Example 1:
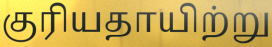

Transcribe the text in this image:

குரியதாயிற்று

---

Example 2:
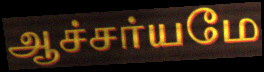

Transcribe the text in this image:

ஆச்சர்யமே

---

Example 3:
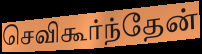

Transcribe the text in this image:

செவிகூர்ந்தேன்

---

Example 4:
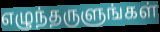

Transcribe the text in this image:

எழுந்தருளுங்கள்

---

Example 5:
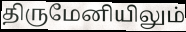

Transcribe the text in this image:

திருமேனியிலும்